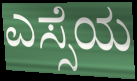
ಎಸ್ಸೆಯ